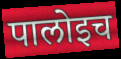
पालोइच